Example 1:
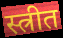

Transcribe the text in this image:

स्त्रीत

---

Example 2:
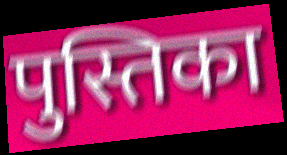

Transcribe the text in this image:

पुस्तिका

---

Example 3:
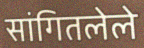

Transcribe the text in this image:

सांगितलेले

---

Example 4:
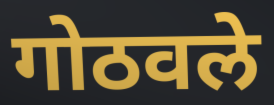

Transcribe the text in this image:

गोठवले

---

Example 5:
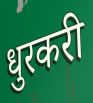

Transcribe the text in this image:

धुरकरी